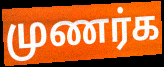
முணர்க